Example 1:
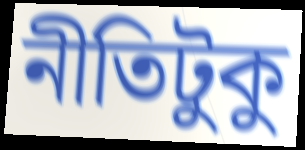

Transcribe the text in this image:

নীতিটুকু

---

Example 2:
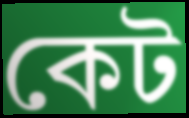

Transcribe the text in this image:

কেট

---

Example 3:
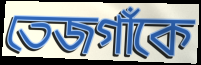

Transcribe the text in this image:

তেজগাঁকে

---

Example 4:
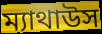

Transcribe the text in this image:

ম্যাথাউস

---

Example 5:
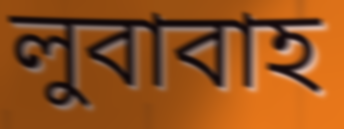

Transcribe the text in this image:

লুবাবাহ